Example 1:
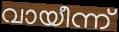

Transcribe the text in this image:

വായീന്ന്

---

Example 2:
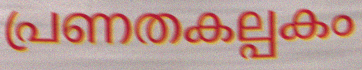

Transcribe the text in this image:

പ്രണതകല്പകം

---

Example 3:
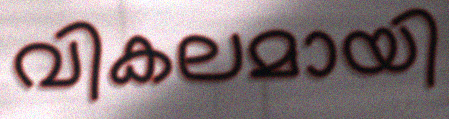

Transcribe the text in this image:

വികലമായി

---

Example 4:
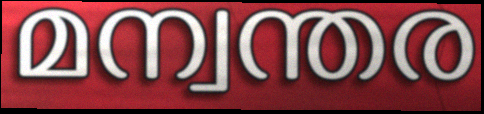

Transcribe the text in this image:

മന്വന്തര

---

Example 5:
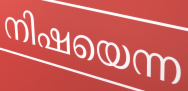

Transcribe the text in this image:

നിഷയെന്ന